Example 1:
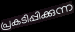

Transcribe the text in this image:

പ്രകടിപ്പിക്കുന്ന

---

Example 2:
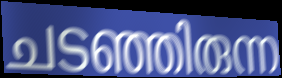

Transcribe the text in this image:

ചടഞ്ഞിരുന്ന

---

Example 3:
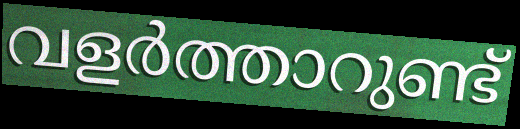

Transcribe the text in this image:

വളർത്താറുണ്ട്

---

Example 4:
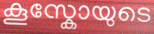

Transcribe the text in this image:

കൂസ്കോയുടെ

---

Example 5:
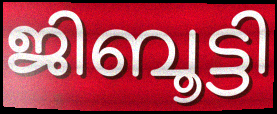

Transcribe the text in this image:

ജിബൂട്ടി